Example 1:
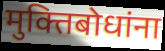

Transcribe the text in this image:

मुक्तिबोधांना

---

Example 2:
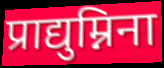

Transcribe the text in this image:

प्राद्युम्निना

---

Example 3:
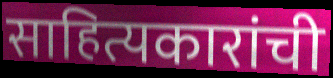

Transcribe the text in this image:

साहित्यकारांची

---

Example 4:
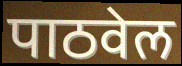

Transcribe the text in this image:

पाठवेल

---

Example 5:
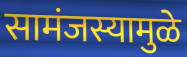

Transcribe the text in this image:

सामंजस्यामुळे